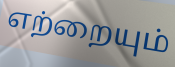
எற்றையும்